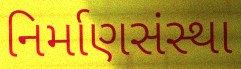
નિર્માણસંસ્થા